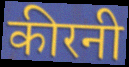
कीरनी